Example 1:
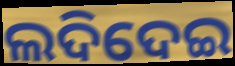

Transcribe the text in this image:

ଲଦିଦେଇ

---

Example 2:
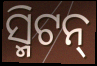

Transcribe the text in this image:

ସ୍ମିଟନ୍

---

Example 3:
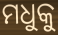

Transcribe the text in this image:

ମଧୁକୁ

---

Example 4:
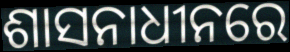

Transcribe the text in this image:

ଶାସନାଧୀନରେ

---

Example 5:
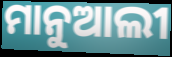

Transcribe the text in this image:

ମାନୁଆଲୀ